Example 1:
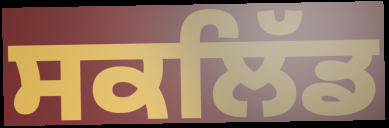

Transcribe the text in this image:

ਸਕਲਿੱਡ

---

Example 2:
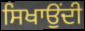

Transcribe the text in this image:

ਸਿਖਾਉਂਦੀ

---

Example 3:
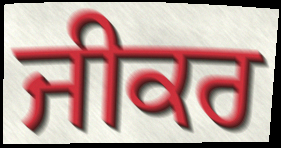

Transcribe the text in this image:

ਜੀਕਰ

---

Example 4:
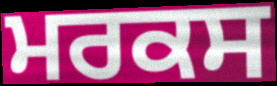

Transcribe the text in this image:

ਮਰਕਸ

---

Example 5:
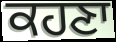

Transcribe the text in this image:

ਕਹਣਾ